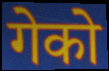
गेको